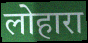
लोहारा